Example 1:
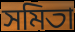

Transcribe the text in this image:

সমিতা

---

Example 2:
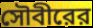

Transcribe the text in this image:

সৌবীরের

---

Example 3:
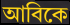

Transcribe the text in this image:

আবিকে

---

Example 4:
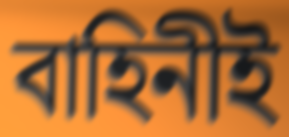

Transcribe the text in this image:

বাহিনীই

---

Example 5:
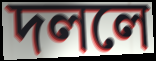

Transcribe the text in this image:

দললে